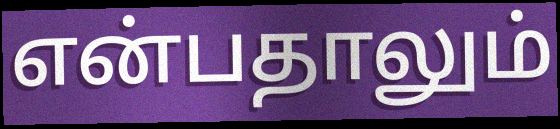
என்பதாலும்